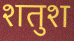
शतुश